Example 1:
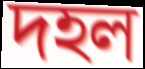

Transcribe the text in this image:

দহল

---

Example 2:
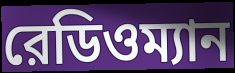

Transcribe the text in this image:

রেডিওম্যান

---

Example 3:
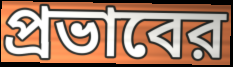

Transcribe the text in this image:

প্রভাবের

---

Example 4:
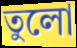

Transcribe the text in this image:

তুলো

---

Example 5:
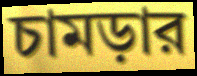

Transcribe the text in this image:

চামড়ার